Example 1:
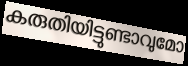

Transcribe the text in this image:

കരുതിയിട്ടുണ്ടാവുമോ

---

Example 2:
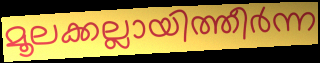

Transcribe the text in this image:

മൂലക്കല്ലായിത്തീർന്ന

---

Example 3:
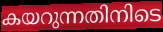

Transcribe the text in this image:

കയറുന്നതിനിടെ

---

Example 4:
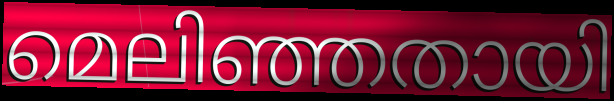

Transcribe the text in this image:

മെലിഞ്ഞതായി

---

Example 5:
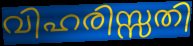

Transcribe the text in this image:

വിഹരിസ്സതി